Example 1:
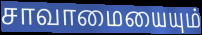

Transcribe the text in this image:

சாவாமையையும்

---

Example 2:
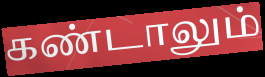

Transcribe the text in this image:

கண்டாலும்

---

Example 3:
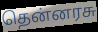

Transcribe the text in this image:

தென்னரசு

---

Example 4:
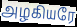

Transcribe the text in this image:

அழகியரே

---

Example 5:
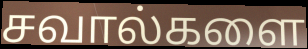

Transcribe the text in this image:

சவால்களை